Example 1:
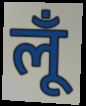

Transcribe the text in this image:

लूँ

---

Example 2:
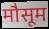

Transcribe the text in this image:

मौसूम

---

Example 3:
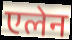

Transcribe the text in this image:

एलेन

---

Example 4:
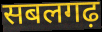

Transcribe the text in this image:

सबलगढ़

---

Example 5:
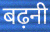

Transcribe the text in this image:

बढ़नी